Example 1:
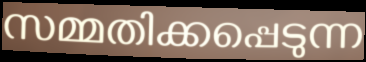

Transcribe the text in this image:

സമ്മതിക്കപ്പെടുന്ന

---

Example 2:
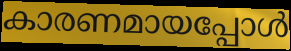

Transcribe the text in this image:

കാരണമായപ്പോൾ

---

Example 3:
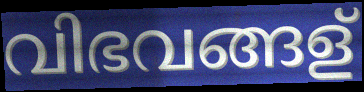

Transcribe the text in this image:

വിഭവങ്ങള്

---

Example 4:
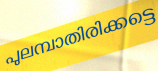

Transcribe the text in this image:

പുലമ്പാതിരിക്കട്ടെ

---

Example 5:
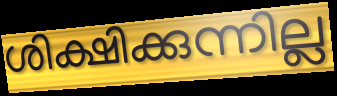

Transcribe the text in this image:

ശിക്ഷിക്കുന്നില്ല